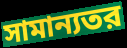
সামান্যতর